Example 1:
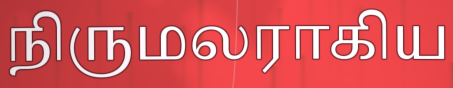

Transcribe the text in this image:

நிருமலராகிய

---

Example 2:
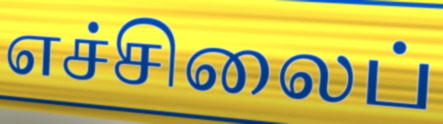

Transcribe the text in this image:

எச்சிலைப்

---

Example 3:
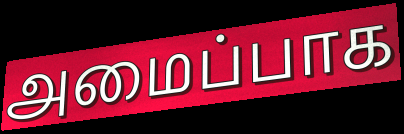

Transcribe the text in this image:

அமைப்பாக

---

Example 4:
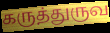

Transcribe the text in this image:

கருத்துருவ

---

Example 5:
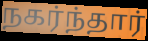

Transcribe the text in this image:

நகர்ந்தார்